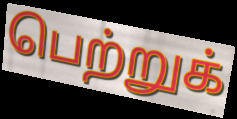
பெற்றுக்